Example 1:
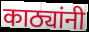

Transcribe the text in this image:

काठ्यांनी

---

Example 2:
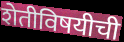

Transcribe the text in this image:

शेतीविषयीची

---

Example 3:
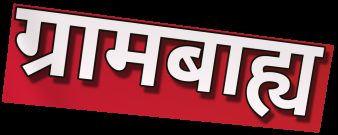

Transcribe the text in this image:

ग्रामबाह्य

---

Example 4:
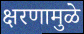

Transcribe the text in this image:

क्षरणामुळे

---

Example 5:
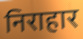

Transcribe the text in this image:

निराहार